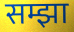
सम्झा